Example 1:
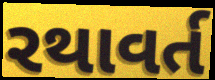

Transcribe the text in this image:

રથાવર્ત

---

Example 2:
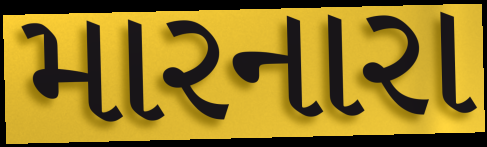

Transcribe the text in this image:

મારનારા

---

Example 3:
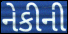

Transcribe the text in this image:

નેકીની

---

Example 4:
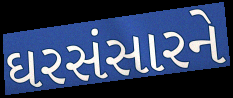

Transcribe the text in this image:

ઘરસંસારને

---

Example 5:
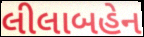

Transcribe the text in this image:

લીલાબહેન